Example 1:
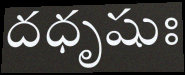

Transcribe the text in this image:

దధృషుః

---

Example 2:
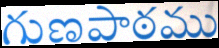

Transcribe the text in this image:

గుణపాఠము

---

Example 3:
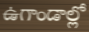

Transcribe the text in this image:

ఉగాండాల్లో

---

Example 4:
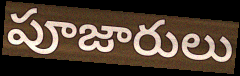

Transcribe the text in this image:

పూజారులు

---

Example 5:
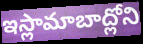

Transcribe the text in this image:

ఇస్లామాబాద్లోని